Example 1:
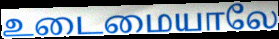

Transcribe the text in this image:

உடைமையாலே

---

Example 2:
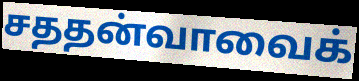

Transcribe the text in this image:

சததன்வாவைக்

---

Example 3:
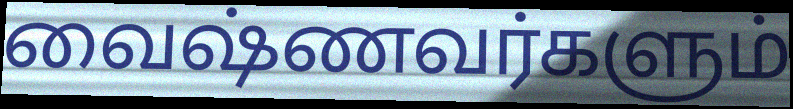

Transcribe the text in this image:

வைஷ்ணவர்களும்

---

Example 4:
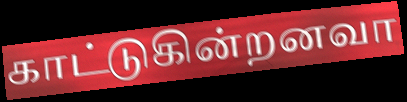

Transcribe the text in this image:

காட்டுகின்றனவா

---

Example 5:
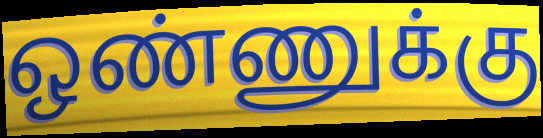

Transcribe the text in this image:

ஒண்ணுக்கு